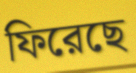
ফিরেছে